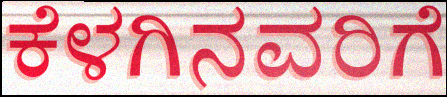
ಕೆಳಗಿನವರಿಗೆ